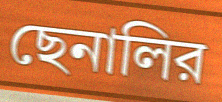
ছেনালির